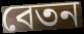
বেতন